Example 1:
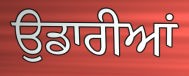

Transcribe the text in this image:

ਉਡਾਰੀਆਂ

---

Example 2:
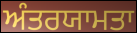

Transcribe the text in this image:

ਅੰਤਰਯਾਮਤਾ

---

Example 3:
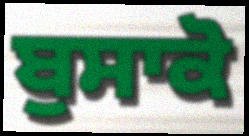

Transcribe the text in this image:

ਬੁਸਾਕੋ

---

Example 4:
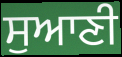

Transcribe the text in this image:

ਸੁਆਣੀ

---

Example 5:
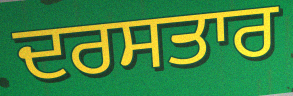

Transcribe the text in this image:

ਦਰਸਤਾਰ